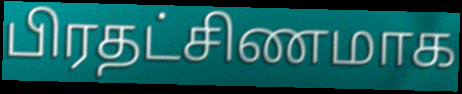
பிரதட்சிணமாக